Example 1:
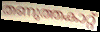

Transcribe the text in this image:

തണുത്തകാറ്റ്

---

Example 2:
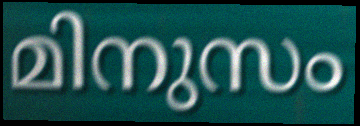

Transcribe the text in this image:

മിനുസം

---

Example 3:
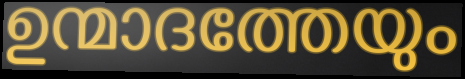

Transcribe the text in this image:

ഉന്മാദത്തേയും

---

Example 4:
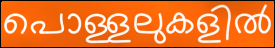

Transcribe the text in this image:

പൊള്ളലുകളിൽ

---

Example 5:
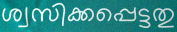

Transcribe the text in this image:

ശ്വസിക്കപ്പെട്ടതു